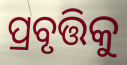
ପ୍ରବୃତ୍ତିକୁ